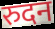
रुदन